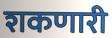
शकणारी